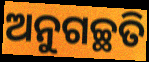
ଅନୁଗଚ୍ଛତି